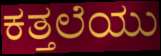
ಕತ್ತಲೆಯು